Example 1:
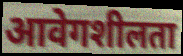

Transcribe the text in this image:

आवेगशीलता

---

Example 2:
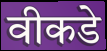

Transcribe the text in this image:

वीकडे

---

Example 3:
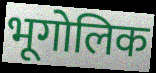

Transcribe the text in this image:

भूगोलिक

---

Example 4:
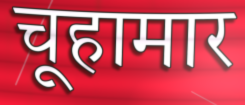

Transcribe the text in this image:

चूहामार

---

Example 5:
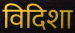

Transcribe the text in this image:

विदिशा